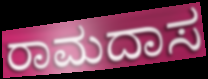
ರಾಮದಾಸ